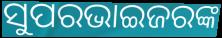
ସୁପରଭାଇଜରଙ୍କ